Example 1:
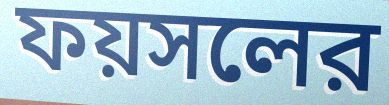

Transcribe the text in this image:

ফয়সলের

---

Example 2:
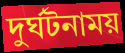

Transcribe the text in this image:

দুর্ঘটনাময়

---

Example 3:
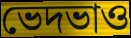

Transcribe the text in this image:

ভেদভাও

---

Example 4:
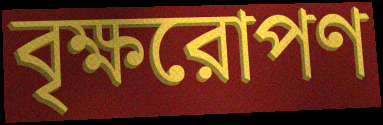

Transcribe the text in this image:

বৃক্ষরোপণ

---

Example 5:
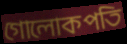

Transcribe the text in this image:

গোলোকপতি